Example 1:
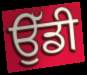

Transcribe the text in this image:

ਉੱਡੀ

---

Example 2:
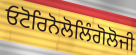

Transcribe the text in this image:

ਓਟੋਰਿਨੋਲੋਲਿੰਗੋਲੋਜੀ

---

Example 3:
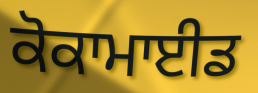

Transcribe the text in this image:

ਕੋਕਾਮਾਈਡ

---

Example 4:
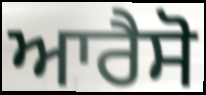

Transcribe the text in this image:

ਆਰੈਸੋ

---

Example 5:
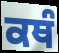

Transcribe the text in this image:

ਕਥੰ